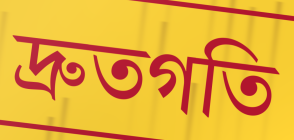
দ্রুতগতি